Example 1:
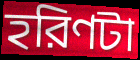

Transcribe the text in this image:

হরিণটা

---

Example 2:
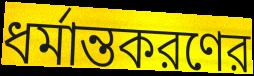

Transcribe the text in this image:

ধর্মান্তকরণের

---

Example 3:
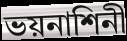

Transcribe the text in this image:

ভয়নাশিনী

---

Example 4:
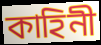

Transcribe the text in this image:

কাহিনী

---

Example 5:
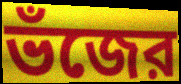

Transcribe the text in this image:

ভঁজের